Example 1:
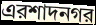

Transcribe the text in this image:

এরশাদনগর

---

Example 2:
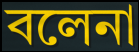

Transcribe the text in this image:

বলেনা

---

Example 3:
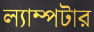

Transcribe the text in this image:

ল্যাম্পটার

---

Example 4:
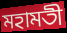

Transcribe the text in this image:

মহামতী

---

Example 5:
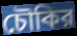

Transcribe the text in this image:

চৌকির